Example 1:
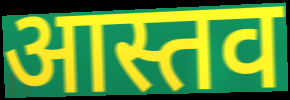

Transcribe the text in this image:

आस्तव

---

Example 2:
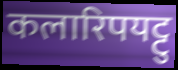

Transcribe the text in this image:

कलारिपयट्टु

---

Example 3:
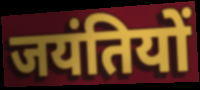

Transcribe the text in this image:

जयंतियों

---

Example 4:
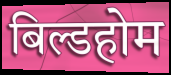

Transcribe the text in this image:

बिल्डहोम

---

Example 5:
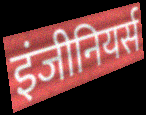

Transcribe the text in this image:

इंजीनियर्स